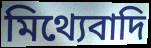
মিথ্যেবাদি